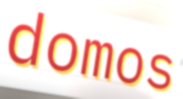
domos